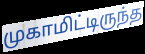
முகாமிட்டிருந்த